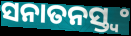
ସନାତନସ୍ତ୍ୱଂ